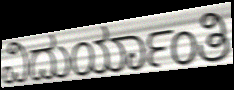
ವಿದುರ್ಯಾಂತಿ